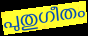
പുതുഗീതം